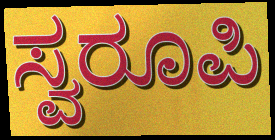
ಸ್ವರೂಪಿ